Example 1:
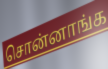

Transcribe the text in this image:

சொன்னாங்க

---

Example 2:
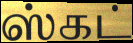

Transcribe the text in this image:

ஸ்கட்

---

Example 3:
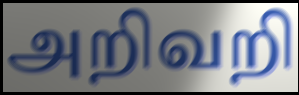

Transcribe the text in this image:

அறிவறி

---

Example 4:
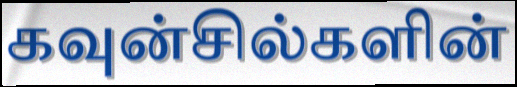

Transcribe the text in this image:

கவுன்சில்களின்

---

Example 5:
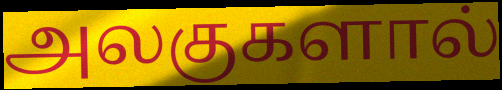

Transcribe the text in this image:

அலகுகளால்